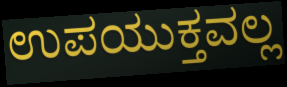
ಉಪಯುಕ್ತವಲ್ಲ